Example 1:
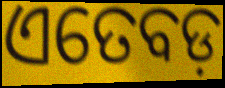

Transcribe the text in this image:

ଏତେବଡ଼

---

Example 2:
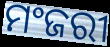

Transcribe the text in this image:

ମଂଜରୀ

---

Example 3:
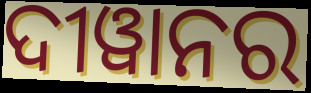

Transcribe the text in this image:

ଦୀୱାନର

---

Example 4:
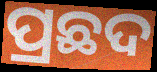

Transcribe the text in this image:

ପ୍ରଛଦ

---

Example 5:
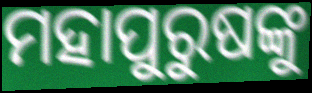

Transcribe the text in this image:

ମହାପୁରୁଷଙ୍କୁ